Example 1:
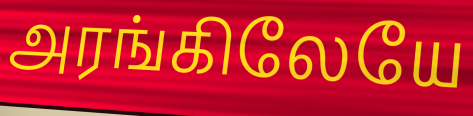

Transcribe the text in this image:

அரங்கிலேயே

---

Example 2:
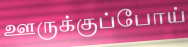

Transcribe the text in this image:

ஊருக்குப்போய்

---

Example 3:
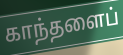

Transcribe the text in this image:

காந்தளைப்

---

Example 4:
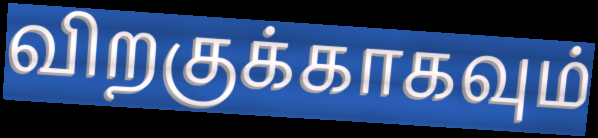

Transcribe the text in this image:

விறகுக்காகவும்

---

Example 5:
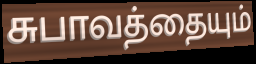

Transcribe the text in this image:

சுபாவத்தையும்